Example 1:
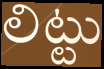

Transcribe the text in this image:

లిట్టు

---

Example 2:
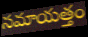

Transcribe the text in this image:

సమాయత్తం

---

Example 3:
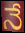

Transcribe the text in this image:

నే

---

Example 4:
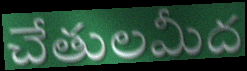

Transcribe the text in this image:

చేతులమీద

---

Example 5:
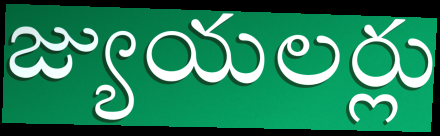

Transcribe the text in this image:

జ్యుయలర్లు